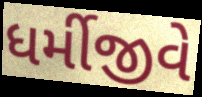
ધર્મીજીવે